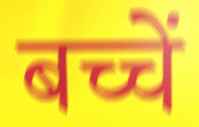
बच्चें